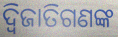
ଦ୍ୱିଜାତିଗଣଙ୍କ